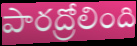
పారద్రోలింది